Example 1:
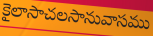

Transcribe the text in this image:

కైలాసాచలసానువాసము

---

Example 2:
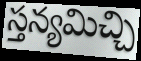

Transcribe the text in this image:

స్తన్యమిచ్చి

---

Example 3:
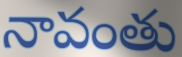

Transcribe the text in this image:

నావంతు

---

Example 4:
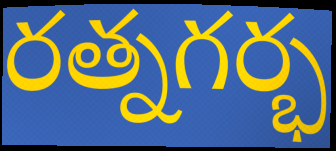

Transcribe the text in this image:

రత్నగర్భ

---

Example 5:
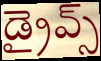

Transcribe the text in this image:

డ్రైవ్స్